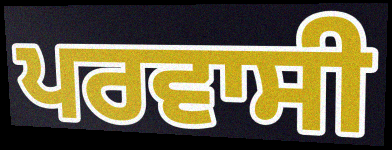
ਪਰਵਾਸੀ